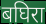
बघिरा